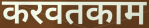
करवतकाम